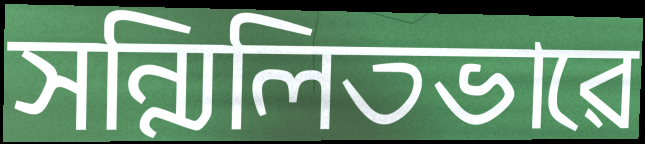
সন্মিলিতভাৱে